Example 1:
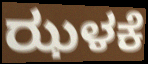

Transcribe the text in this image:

ಝಳಕೆ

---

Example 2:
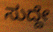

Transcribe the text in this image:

ಸುದ್ದೇ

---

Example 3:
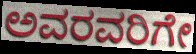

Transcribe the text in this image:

ಅವರವರಿಗೇ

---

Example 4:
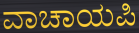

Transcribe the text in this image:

ವಾಚಾಯಪಿ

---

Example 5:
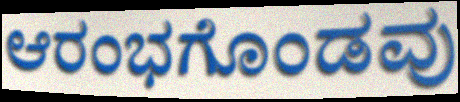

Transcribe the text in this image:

ಆರಂಭಗೊಂಡವು